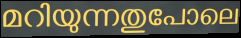
മറിയുന്നതുപോലെ